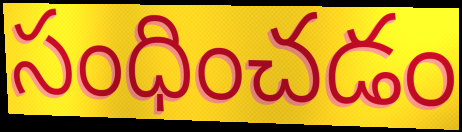
సంధించడం